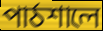
পাঠশালে